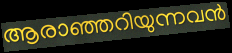
ആരാഞ്ഞറിയുന്നവൻ